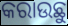
କରାଉଛୁ